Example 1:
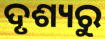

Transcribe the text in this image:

ଦୃଶ୍ୟରୁ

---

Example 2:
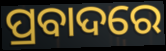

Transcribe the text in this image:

ପ୍ରବାଦରେ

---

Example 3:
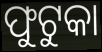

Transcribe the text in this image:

ଫୁଟୁକା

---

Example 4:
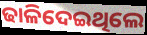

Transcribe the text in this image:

ଢାଳିଦେଇଥିଲେ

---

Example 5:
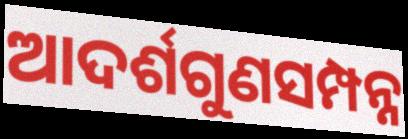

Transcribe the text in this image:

ଆଦର୍ଶଗୁଣସମ୍ପନ୍ନ